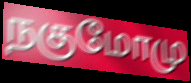
நகுமோமு